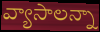
వ్యాసాలన్నా